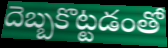
దెబ్బకొట్టడంతో